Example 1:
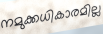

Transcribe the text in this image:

നമുക്കധികാരമില്ല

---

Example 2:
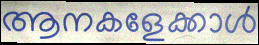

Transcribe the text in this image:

ആനകളേക്കാൾ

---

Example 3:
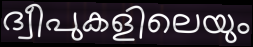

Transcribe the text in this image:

ദ്വീപുകളിലെയും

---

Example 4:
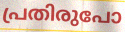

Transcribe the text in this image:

പ്രതിരുപോ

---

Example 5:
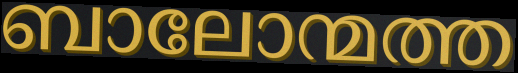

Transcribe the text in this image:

ബാലോന്മത്ത